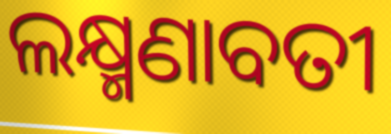
ଲକ୍ଷ୍ମଣାବତୀ